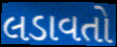
લડાવતો